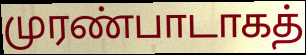
முரண்பாடாகத்